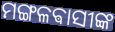
ମଙ୍ଗଳଵାସୀଙ୍କ